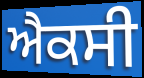
ਐਕਸੀ